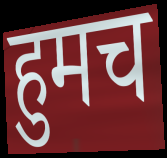
हुमच